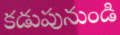
కడుపునుండి